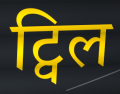
ट्विल